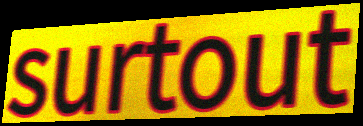
surtout